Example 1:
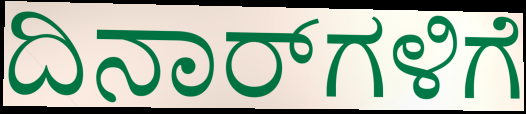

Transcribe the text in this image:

ದಿನಾರ್‌ಗಳಿಗೆ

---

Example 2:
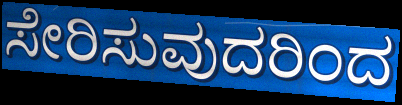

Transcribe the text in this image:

ಸೇರಿಸುವುದರಿಂದ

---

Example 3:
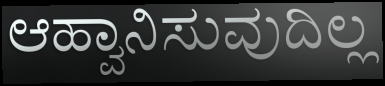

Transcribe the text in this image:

ಆಹ್ವಾನಿಸುವುದಿಲ್ಲ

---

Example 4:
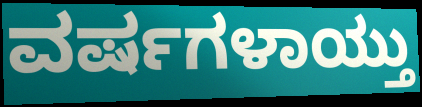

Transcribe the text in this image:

ವರ್ಷಗಳಾಯ್ತು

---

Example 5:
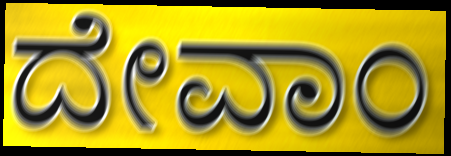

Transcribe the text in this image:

ದೇವಾಂ